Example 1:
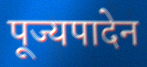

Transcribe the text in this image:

पूज्यपादेन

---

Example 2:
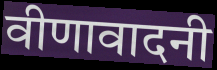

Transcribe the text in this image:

वीणावादनी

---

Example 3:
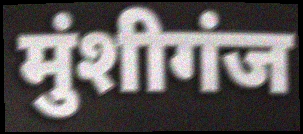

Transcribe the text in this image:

मुंशीगंज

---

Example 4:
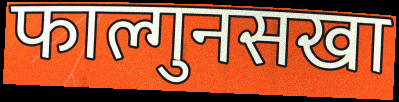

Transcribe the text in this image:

फाल्गुनसखा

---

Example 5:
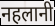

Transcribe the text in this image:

नहलानी